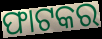
ଫାଟକର